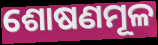
ଶୋଷଣମୂଳ